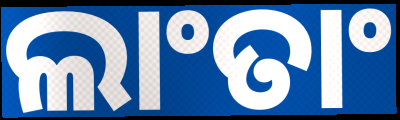
ଲାଂତାଂ